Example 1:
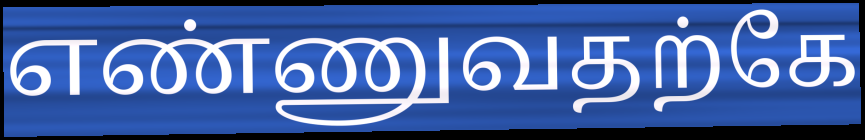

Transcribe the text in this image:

எண்ணுவதற்கே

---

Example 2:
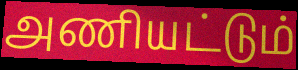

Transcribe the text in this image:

அணியட்டும்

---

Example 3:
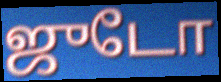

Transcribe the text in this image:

ஜுடோ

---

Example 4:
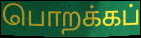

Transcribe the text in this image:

பொறக்கப்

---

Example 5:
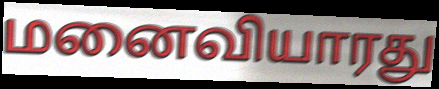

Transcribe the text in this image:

மனைவியாரது